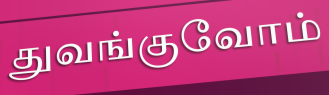
துவங்குவோம்